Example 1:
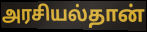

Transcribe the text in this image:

அரசியல்தான்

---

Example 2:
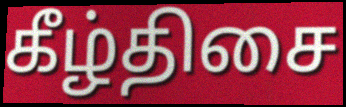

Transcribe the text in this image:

கீழ்திசை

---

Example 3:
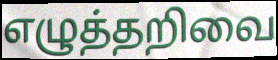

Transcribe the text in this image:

எழுத்தறிவை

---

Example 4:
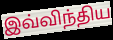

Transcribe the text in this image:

இவ்விந்திய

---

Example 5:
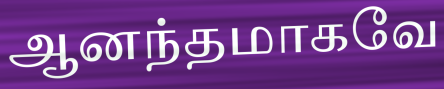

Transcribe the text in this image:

ஆனந்தமாகவே